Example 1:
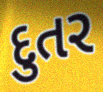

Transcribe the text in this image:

દુતર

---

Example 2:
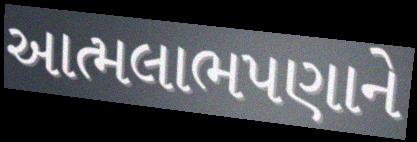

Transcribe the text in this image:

આત્મલાભપણાને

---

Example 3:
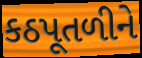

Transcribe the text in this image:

કઠપૂતળીને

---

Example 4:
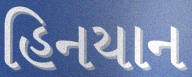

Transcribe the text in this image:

હિનયાન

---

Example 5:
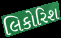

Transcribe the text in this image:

લિકોરિશ